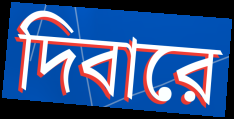
দিবারে